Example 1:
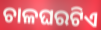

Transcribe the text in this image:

ଚାଳଘରଟିଏ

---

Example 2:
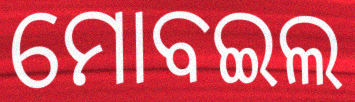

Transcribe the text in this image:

ମୋବଇଲ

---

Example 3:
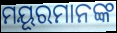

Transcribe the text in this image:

ମୟୂରମାନଙ୍କ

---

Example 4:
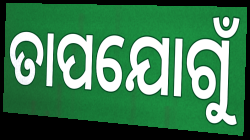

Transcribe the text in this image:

ତାପଯୋଗୁଁ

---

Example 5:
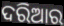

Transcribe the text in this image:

ଦରିଆର